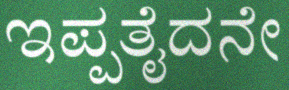
ಇಪ್ಪತೈದನೇ